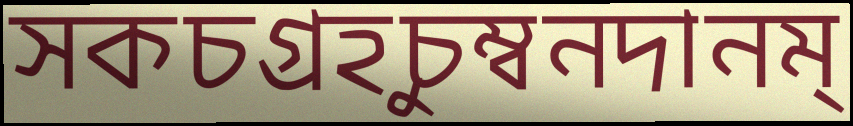
সকচগ্রহচুম্বনদানম্